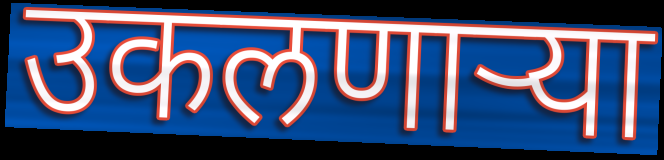
उकलणाऱ्या